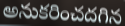
అనుకరించదగిన